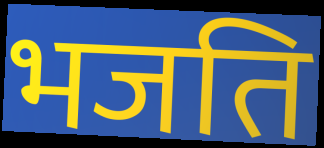
भजति